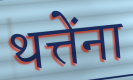
थत्तेंना